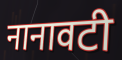
नानावटी